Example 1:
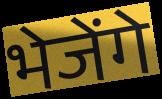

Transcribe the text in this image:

भेजेंगे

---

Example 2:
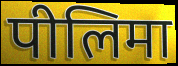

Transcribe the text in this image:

पीलिमा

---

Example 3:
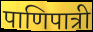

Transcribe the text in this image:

पाणिपात्री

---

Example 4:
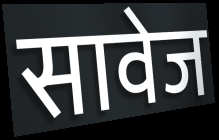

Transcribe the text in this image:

सावेज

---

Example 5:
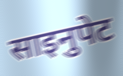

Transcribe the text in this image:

साइनुपेट